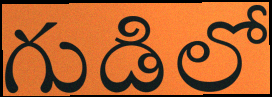
గుడిలో